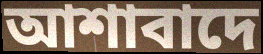
আশাবাদে